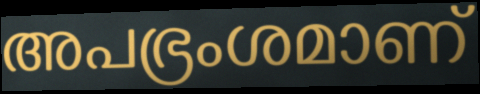
അപഭ്രംശമാണ്